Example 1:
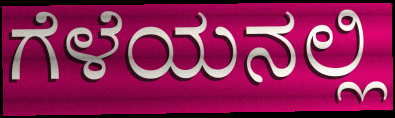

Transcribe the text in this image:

ಗೆಳೆಯನಲ್ಲಿ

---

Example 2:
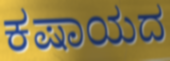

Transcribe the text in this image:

ಕಷಾಯದ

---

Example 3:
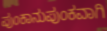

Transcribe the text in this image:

ಪುಂಕಾನುಪುಂಕವಾಗಿ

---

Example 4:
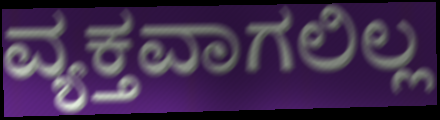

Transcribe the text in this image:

ವ್ಯಕ್ತವಾಗಲಿಲ್ಲ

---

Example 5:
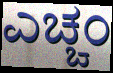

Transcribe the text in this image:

ಎಚ್ಚಂ